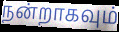
நன்றாகவும்